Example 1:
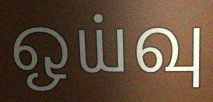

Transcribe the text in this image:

ஒய்வு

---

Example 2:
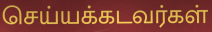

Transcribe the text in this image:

செய்யக்கடவர்கள்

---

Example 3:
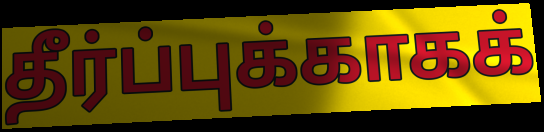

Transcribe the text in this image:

தீர்ப்புக்காகக்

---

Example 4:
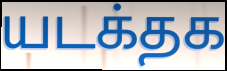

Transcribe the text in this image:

யடக்தக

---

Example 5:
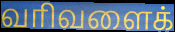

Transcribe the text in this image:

வரிவளைக்